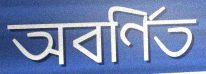
অবর্ণিত